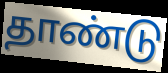
தாண்டு